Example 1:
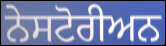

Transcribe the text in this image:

ਨੇਸਟੋਰੀਅਨ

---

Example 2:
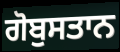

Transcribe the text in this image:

ਗੋਬੁਸਤਾਨ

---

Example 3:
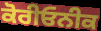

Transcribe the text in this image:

ਕੋਰੀਓਨੀਕ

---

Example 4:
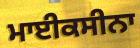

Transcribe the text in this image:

ਮਾਈਕਸੀਨਾ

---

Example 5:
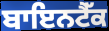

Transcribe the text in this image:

ਬਾਇਨਟੈੱਕ